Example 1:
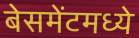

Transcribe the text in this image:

बेसमेंटमध्ये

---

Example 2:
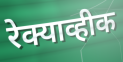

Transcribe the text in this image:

रेक्याव्हीक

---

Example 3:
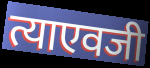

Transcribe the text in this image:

त्याएवजी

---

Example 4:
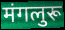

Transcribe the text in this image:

मंगलुरू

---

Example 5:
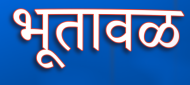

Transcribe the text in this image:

भूतावळ